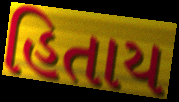
હિતાય